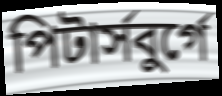
পিটাৰ্সবুৰ্গে